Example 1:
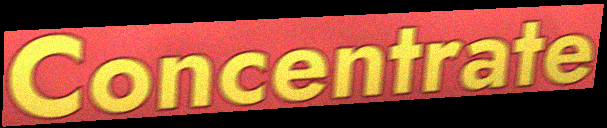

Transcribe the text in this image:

Concentrate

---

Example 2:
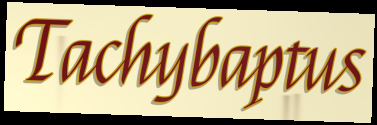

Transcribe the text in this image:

Tachybaptus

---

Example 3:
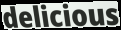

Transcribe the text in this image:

delicious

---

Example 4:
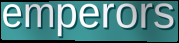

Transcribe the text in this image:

emperors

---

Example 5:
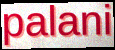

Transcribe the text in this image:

palani